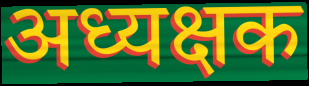
अध्यक्षक